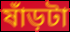
ষাঁড়টা